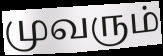
முவரும்